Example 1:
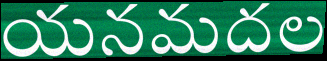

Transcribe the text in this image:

యనమదల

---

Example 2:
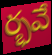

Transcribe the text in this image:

ర్భవే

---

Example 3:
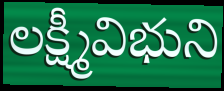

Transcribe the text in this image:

లక్ష్మీవిభుని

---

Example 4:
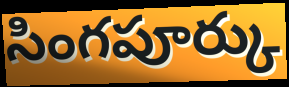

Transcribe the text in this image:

సింగపూర్కు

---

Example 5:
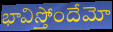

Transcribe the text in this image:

భావిస్తోందేమో